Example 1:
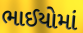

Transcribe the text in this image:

ભાઈયોમાં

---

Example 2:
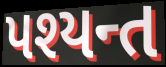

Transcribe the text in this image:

પશ્યન્ત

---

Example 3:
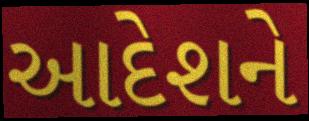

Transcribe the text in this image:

આદેશને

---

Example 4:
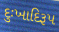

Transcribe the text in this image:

દુઃખાદિરૂપ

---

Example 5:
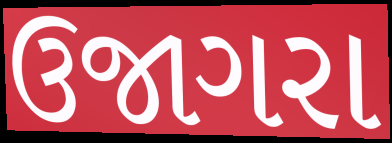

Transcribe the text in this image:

ઉજાગરા